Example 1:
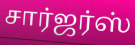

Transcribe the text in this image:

சார்ஜர்ஸ்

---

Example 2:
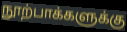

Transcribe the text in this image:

நூற்பாக்களுக்கு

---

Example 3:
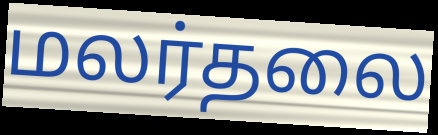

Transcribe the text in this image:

மலர்தலை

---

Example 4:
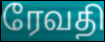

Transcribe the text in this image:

ரேவதி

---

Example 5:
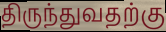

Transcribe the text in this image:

திருந்துவதற்கு